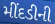
મીંદડીની